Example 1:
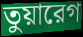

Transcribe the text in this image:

তুয়ারেগ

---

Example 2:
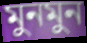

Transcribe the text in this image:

মুনমুন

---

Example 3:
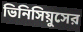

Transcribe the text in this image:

ভিনিসিয়ুসের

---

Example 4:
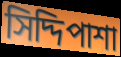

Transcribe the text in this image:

সিদ্দিপাশা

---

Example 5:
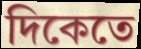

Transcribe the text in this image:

দিকেতে